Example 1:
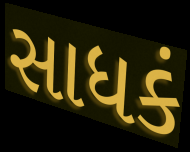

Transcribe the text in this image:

સાધકં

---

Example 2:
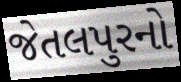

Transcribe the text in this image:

જેતલપુરનો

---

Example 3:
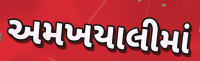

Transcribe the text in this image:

અમખયાલીમાં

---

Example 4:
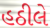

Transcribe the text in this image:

હઠીલે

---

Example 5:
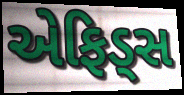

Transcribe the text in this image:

એફિડ્સ